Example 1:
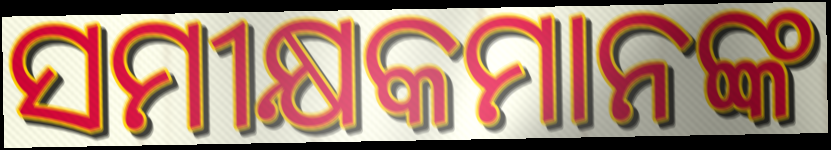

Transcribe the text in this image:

ସମୀକ୍ଷକମାନଙ୍କ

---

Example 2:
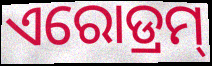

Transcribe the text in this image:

ଏରୋଡ୍ରମ୍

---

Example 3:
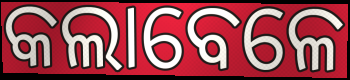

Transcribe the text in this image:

କଲାବେଳେ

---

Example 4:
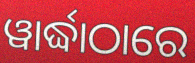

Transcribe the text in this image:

ୱାର୍ଦ୍ଧାଠାରେ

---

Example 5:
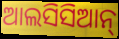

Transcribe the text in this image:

ଆଲସିସିଆନ୍